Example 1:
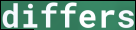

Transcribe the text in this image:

differs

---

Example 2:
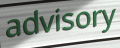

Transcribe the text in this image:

advisory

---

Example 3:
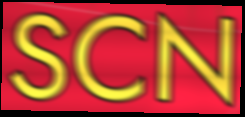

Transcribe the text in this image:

SCN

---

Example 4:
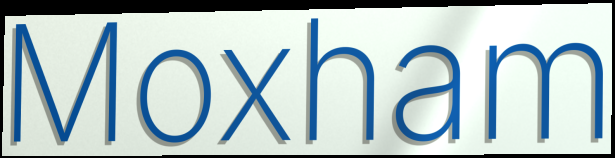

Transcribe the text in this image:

Moxham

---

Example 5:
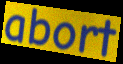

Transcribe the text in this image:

abort